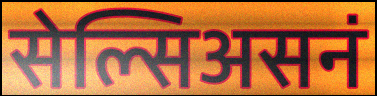
सेल्सिअसनं